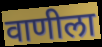
वाणीला